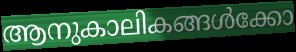
ആനുകാലികങ്ങൾക്കോ